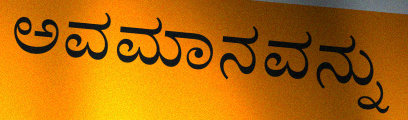
ಅವಮಾನವನ್ನು